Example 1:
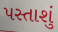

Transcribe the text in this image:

પસ્તાશું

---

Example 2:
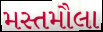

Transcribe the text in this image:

મસ્તમૌલા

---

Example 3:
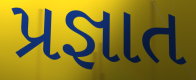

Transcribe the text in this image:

પ્રજ્ઞાત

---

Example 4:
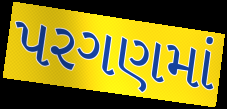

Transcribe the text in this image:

પરગણમાં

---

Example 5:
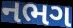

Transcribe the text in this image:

નભગ